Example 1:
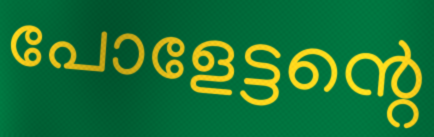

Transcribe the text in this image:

പോളേട്ടന്റെ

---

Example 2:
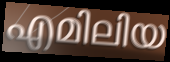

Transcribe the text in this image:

എമിലിയ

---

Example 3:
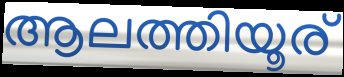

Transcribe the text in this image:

ആലത്തിയൂര്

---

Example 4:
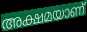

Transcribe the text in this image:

അക്ഷമയാണ്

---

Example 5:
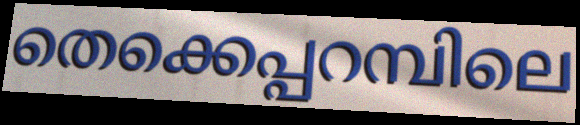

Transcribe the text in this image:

തെക്കെപ്പറമ്പിലെ